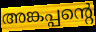
അങ്കപ്പന്റെ